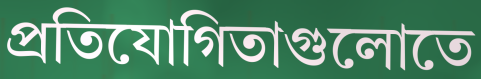
প্রতিযোগিতাগুলোতে